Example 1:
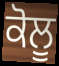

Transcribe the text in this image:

ਕੋਲੂ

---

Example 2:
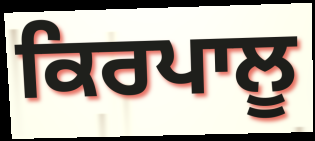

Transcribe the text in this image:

ਕਿਰਪਾਲੂ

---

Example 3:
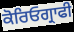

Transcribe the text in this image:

ਕੋਰਿਓਗ੍ਰਾਫੀ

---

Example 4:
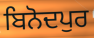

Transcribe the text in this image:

ਬਿਨੋਦਪੁਰ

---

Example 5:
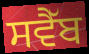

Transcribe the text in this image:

ਸਵੈੱਬ